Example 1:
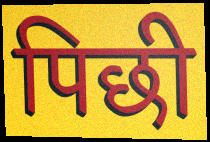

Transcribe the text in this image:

पिछी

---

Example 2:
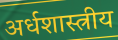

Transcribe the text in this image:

अर्धशास्त्रीय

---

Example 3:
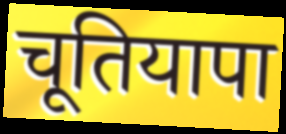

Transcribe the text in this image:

चूतियापा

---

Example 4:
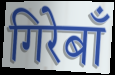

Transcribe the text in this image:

गिरेबाँ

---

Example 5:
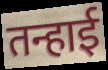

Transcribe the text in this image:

तन्हाई